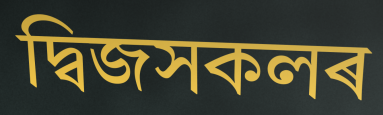
দ্বিজসকলৰ